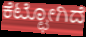
ಕೆಟ್ಟೋಗಿದೆ